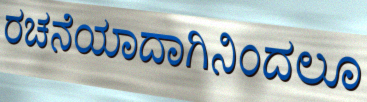
ರಚನೆಯಾದಾಗಿನಿಂದಲೂ